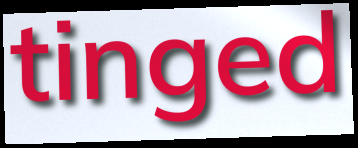
tinged